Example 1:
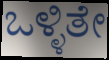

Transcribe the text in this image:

ಒಳ್ಳಿತೇ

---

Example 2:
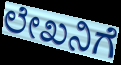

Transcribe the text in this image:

ಲೇಖನಿಗೆ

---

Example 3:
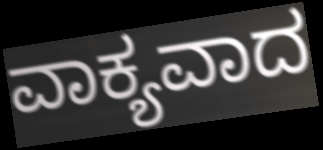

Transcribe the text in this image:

ವಾಕ್ಯವಾದ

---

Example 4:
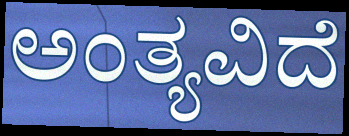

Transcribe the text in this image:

ಅಂತ್ಯವಿದೆ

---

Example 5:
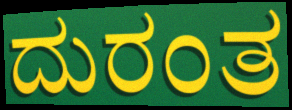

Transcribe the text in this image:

ದುರಂತ